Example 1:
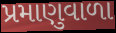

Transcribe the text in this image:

પ્રમાણુવાળા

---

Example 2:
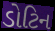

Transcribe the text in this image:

ડોટિન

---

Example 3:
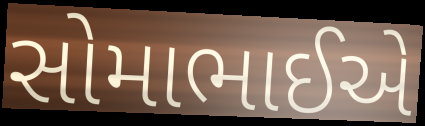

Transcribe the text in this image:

સોમાભાઈએ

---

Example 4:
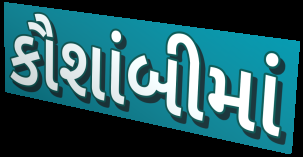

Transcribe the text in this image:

કૌશાંબીમાં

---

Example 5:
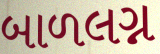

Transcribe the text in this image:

બાળલગ્ન